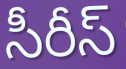
సీరీస్